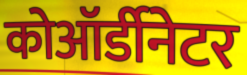
कोऑर्डीनेटर